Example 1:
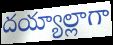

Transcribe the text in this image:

దయ్యాల్లాగా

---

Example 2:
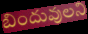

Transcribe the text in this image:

బిందువులని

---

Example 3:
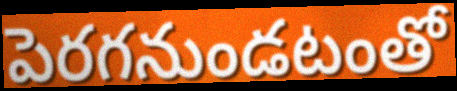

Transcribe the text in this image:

పెరగనుండటంతో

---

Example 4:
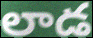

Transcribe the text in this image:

లాడ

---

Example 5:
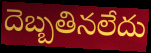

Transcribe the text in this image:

దెబ్బతినలేదు